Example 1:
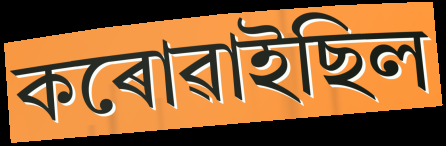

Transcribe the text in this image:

কৰোৱাইছিল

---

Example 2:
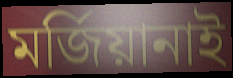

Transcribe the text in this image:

মৰ্জিয়ানাই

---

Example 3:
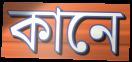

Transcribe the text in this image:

কানে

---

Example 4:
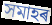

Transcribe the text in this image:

সমাহৰ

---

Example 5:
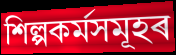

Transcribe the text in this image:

শিল্পকৰ্মসমূহৰ